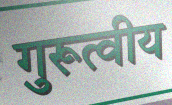
गुरूत्वीय